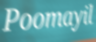
Poomayil